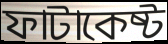
ফাটাকেষ্ট